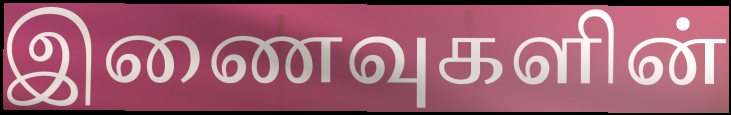
இணைவுகளின்